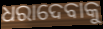
ଧରାଦେବାକୁ